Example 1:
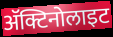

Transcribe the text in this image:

ॲक्टिनोलाइट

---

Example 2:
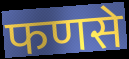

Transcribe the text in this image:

फणसे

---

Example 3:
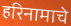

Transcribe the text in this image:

हरिनामाचे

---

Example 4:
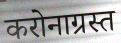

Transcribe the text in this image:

करोनाग्रस्त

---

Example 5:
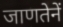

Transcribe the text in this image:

जाणतेनें